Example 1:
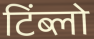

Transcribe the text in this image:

टिंब्लो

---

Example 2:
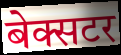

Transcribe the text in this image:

बेक्सटर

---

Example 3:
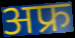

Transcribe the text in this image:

अफ्र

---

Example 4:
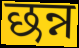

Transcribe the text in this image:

छन्न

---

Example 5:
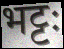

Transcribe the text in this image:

भट्टः